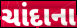
ચાંદાના